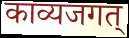
काव्यजगत्